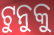
ଟୁନୁକୁ